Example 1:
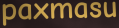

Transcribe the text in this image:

paxmasu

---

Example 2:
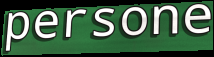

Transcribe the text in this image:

persone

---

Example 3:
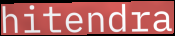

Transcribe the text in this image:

hitendra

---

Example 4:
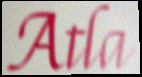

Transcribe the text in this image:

Atla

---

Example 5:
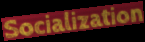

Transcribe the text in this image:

Socialization